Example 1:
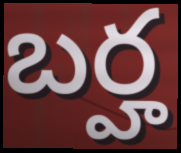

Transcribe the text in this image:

బర్హ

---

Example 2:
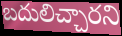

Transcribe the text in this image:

బదులిచ్చారని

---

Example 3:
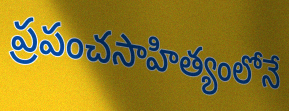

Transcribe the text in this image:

ప్రపంచసాహిత్యంలోనే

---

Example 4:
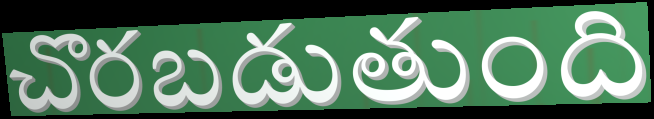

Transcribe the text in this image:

చొరబడుతుంది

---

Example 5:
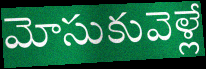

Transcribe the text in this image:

మోసుకువెళ్లే